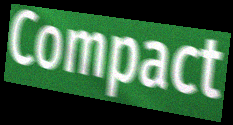
Compact